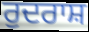
ਰੁਦਰਾਸ਼